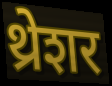
थ्रेशर